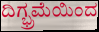
ದಿಗ್ಭ್ರಮೆಯಿಂದ